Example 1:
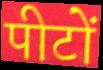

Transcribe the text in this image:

पीटों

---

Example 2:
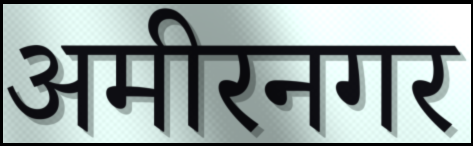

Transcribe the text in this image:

अमीरनगर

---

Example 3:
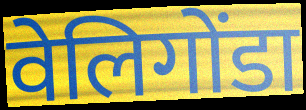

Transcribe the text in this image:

वेलिगोंडा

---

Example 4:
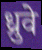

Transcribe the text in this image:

ध्रुवे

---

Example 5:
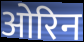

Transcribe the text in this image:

ओरिन